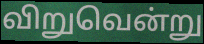
விறுவென்று